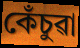
কেঁচুৱা